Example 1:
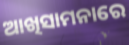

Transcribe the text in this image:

ଆଖିସାମନାରେ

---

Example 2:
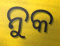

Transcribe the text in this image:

ନୁକ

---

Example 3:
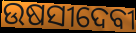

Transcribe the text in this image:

ଉଷସୀଦେବୀ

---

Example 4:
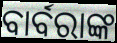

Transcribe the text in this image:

ବାର୍ବରାଙ୍କ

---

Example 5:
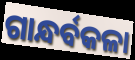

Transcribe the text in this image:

ଗାନ୍ଧର୍ବକଳା